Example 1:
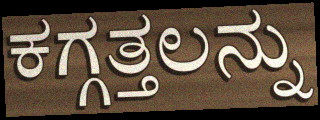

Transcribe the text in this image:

ಕಗ್ಗತ್ತಲನ್ನು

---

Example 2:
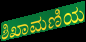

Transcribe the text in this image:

ಶಿಖಾಮಣಿಯ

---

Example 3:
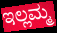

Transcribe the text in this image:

ಇಲ್ಲಮ್ಮ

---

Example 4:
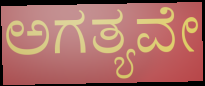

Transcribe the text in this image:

ಅಗತ್ಯವೇ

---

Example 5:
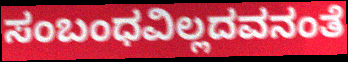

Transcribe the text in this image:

ಸಂಬಂಧವಿಲ್ಲದವನಂತೆ